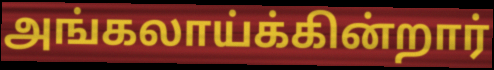
அங்கலாய்க்கின்றார்